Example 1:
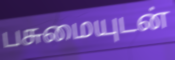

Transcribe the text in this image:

பசுமையுடன்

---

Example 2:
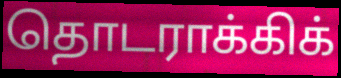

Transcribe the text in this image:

தொடராக்கிக்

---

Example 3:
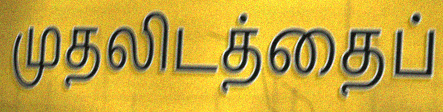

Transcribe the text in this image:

முதலிடத்தைப்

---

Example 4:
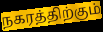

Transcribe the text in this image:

நகரத்திற்கும்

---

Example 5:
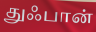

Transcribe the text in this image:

துஃபான்